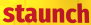
staunch